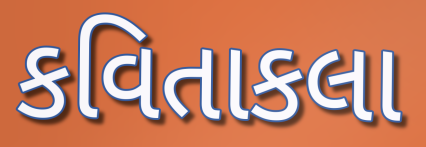
કવિતાકલા